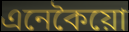
এনেকৈয়ো